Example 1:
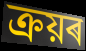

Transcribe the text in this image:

ক্ৰয়ৰ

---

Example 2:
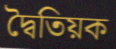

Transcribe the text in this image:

দ্বৈতিয়ক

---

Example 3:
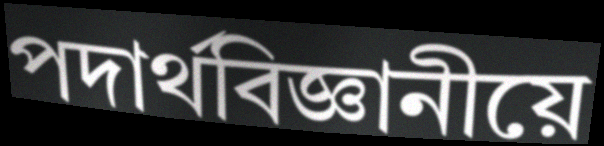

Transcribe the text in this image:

পদাৰ্থবিজ্ঞানীয়ে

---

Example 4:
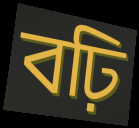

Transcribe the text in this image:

বঢ়ি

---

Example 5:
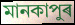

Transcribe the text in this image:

মানকাপুৰ